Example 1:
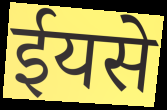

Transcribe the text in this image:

ईयसे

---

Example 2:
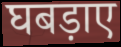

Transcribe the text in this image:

घबड़ाए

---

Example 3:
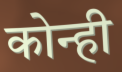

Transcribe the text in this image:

कोन्ही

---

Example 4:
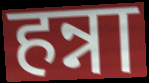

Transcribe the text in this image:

हन्ना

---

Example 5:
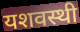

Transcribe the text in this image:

यशवस्थी